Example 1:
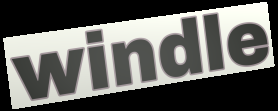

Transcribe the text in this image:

windle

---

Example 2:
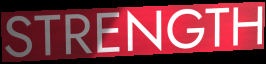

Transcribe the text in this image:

STRENGTH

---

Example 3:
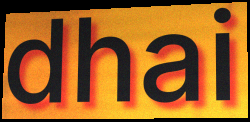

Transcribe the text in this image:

dhai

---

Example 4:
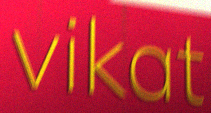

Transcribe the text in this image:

vikat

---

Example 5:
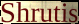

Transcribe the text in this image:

Shrutis